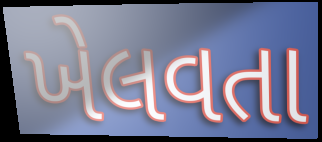
ખેલવતા